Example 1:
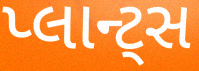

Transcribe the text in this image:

પ્લાન્ટ્સ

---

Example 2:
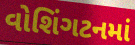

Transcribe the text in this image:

વોશિંગટનમાં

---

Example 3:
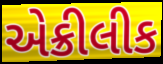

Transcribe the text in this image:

એક્રીલીક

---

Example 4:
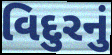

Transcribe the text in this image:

વિદુરનું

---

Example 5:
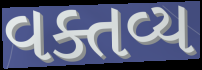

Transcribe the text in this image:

વક્તવ્ય